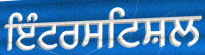
ਇੰਟਰਸਟਿਸ਼ਲ